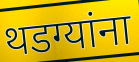
थडग्यांना